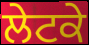
ਲੇਟਕੇ